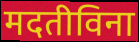
मदतीविना